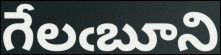
గేలఁబూని